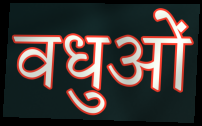
वधुओं